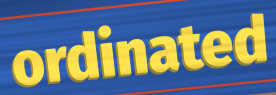
ordinated